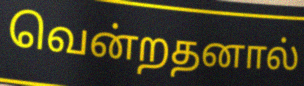
வென்றதனால்